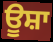
ਊਸ਼ਾ